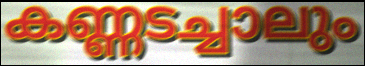
കണ്ണടച്ചാലും